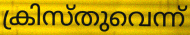
ക്രിസ്തുവെന്ന്